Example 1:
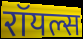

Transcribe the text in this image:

रॉयल्‍स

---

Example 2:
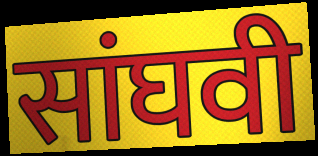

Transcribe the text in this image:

सांघवी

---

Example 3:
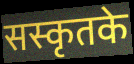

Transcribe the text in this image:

सस्कृतके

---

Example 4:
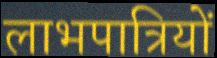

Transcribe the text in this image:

लाभपात्रियों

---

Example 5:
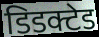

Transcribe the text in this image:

डिडक्टेड